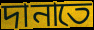
দানাতে